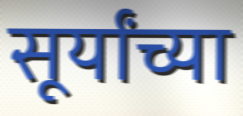
सूर्यांच्या